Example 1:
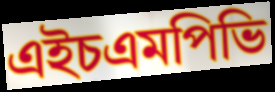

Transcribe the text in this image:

এইচএমপিভি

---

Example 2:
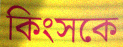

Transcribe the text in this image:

কিংসকে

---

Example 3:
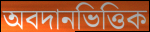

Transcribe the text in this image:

অবদানভিত্তিক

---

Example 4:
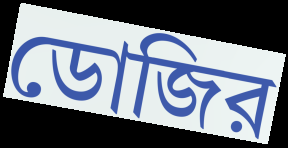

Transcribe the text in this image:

ডোজির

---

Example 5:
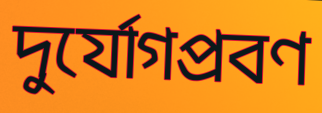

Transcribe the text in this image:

দুর্যোগপ্রবণ